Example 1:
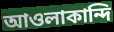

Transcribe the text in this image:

আওলাকান্দি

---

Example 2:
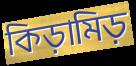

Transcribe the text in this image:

কিড়ামিড়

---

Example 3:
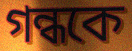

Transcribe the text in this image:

গন্ধকে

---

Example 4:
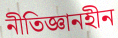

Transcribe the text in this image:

নীতিজ্ঞানহীন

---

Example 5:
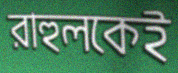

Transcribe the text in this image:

রাহুলকেই